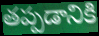
తప్పడానికి